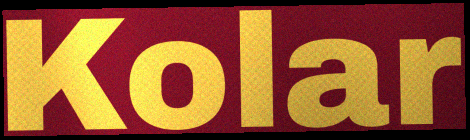
Kolar